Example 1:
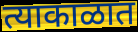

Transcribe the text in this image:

त्याकाळात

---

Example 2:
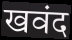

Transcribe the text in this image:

खवंद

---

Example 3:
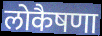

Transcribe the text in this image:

लोकैषणा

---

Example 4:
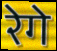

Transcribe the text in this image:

रेगे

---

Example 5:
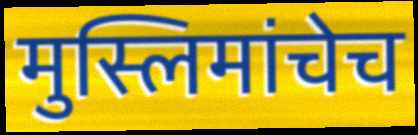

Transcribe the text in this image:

मुस्लिमांचेच